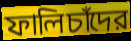
ফালিচাঁদের